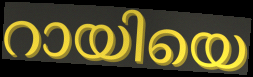
റായിയെ